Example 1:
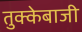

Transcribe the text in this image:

तुक्केबाजी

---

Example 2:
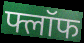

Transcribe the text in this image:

फ्लॉफ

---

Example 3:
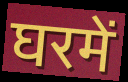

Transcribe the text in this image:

घरमें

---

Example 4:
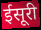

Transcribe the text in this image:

ईसूरी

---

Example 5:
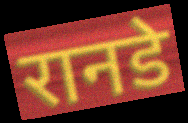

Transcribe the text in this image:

रानडे